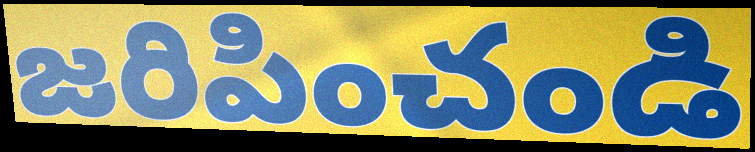
జరిపించండి